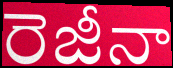
రెజీనా